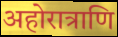
अहोरात्राणि